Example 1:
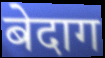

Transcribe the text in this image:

बेदाग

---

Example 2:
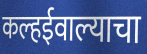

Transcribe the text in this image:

कल्हईवाल्याचा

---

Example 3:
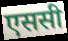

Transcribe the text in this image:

एससी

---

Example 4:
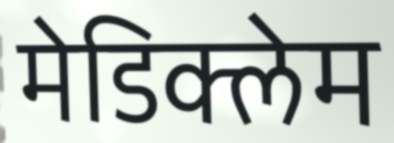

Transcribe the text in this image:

मेडिक्लेम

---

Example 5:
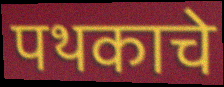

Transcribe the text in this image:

पथकाचे